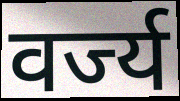
वर्ज्य